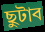
ছুটাব